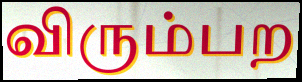
விரும்பற